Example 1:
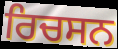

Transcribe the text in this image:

ਰਿਚਸਨ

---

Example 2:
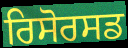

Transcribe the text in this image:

ਰਿਸੋਰਸਡ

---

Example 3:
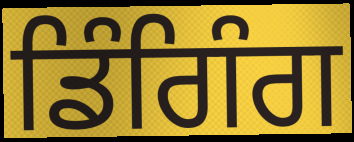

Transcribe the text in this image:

ਡਿੰਗਿੰਗ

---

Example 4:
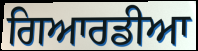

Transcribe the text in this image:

ਗਿਆਰਡੀਆ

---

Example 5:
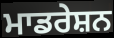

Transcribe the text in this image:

ਮਾਡਰੇਸ਼ਨ